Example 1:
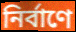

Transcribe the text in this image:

নির্বাণে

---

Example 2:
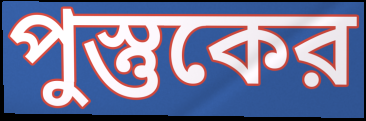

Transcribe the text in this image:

পুস্তুকের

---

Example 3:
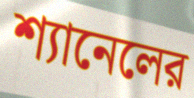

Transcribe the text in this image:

শ্যানেলের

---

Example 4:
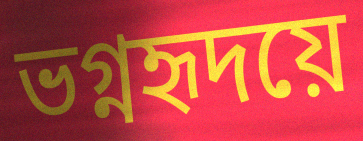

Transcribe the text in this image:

ভগ্নহৃদয়ে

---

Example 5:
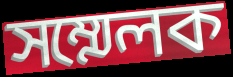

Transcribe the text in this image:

সম্মেলক